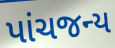
પાંચજન્ય